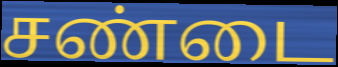
சண்டை